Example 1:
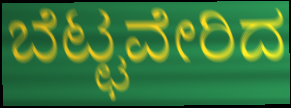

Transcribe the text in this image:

ಬೆಟ್ಟವೇರಿದ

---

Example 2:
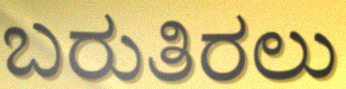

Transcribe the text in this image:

ಬರುತಿರಲು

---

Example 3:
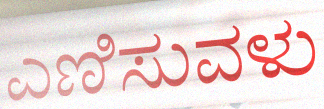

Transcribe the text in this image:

ಎಣಿಸುವಳು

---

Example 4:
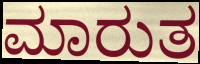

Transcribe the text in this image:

ಮಾರುತ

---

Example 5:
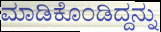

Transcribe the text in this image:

ಮಾಡಿಕೊಂಡಿದ್ದನ್ನು